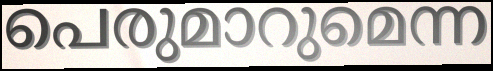
പെരുമാറുമെന്ന